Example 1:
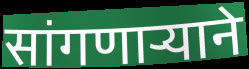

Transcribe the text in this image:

सांगणार्‍याने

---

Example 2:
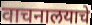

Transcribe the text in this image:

वाचनालयाचे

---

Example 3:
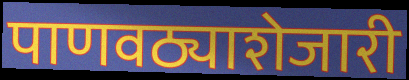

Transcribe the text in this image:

पाणवठ्याशेजारी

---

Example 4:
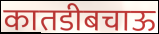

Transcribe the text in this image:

कातडीबचाऊ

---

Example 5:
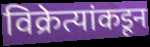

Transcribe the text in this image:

विक्रेत्यांकडून